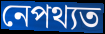
নেপথ্যত